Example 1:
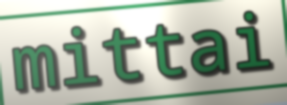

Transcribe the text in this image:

mittai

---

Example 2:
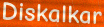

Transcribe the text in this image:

Diskalkar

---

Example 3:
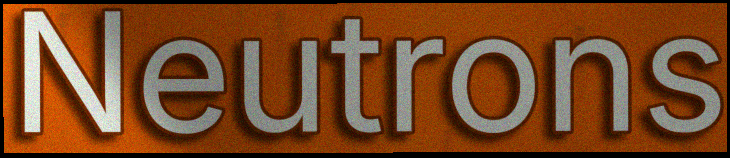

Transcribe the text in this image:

Neutrons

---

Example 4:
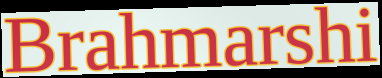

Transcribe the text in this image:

Brahmarshi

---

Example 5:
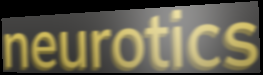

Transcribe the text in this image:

neurotics